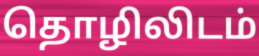
தொழிலிடம்